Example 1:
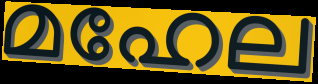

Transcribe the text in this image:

മഹേല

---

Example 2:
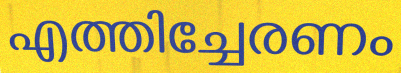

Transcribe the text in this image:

എത്തിച്ചേരണം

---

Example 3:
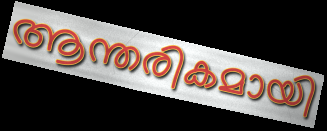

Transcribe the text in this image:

ആന്തരികമായി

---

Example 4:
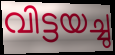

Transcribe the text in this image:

വിട്ടയച്ചു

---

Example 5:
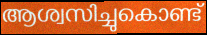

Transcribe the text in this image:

ആശ്വസിച്ചുകൊണ്ട്